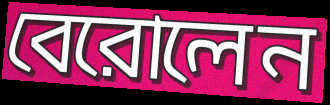
বেরোলেন